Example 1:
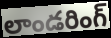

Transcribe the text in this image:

లాండరింగ్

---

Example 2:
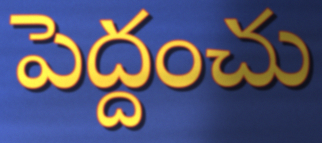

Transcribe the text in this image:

పెద్దంచు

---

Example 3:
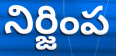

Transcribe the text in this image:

నిర్జింప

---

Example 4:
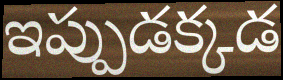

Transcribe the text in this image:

ఇప్పుడక్కడ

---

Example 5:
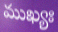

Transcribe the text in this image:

ముఖ్యః